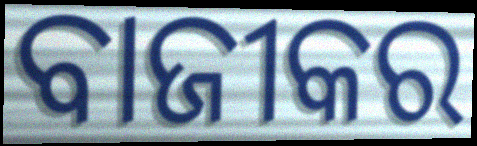
ବାଜୀକର